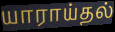
யாராய்தல்